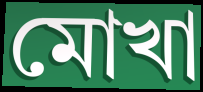
মোখা